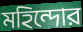
মহিন্দোর